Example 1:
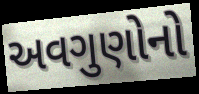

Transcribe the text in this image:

અવગુણોનો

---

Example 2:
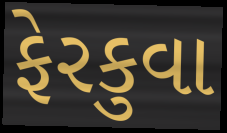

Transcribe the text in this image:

ફેરકુવા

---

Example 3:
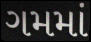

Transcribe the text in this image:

ગમમાં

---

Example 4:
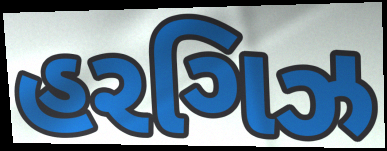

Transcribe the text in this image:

હરગિઝ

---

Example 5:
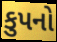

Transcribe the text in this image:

કુપનો